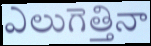
ఎలుగెత్తినా